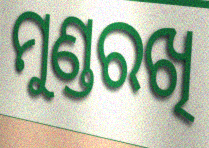
ମୁଣ୍ଡରଖି